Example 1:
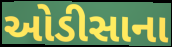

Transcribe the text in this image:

ઓડીસાના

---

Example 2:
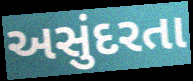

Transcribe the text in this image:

અસુંદરતા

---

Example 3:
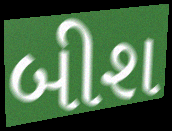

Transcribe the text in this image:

બીશ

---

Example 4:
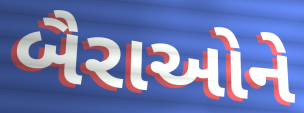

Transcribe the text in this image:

બૈરાઓને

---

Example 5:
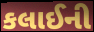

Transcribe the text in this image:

કલાઈની